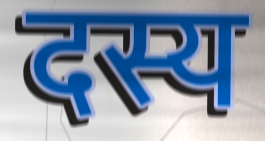
दस्य